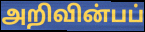
அறிவின்பப்